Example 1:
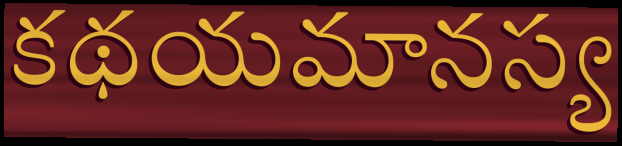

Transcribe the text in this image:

కథయమానస్య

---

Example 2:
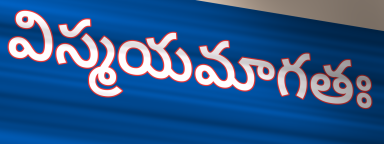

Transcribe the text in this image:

విస్మయమాగతః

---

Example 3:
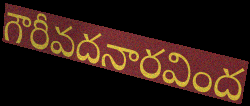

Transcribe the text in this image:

గౌరీవదనారవింద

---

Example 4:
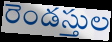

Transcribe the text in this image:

రెండస్తుల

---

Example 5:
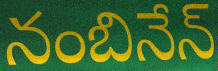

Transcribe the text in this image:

నంబినేన్